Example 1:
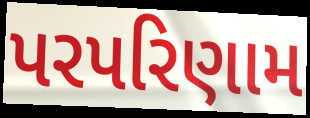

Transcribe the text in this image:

પરપરિણામ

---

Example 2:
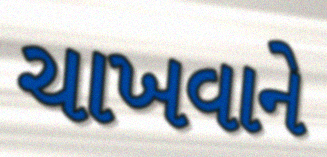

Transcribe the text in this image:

ચાખવાને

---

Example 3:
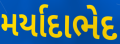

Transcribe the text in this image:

મર્યાદાભેદ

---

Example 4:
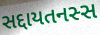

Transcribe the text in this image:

સદ્દાયતનસ્સ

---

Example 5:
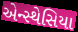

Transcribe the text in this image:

એન્સ્થેસિયા